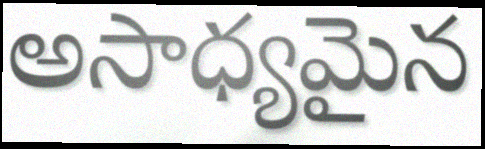
అసాధ్యమైన